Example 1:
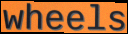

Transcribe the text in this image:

wheels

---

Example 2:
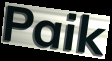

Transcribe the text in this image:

Paik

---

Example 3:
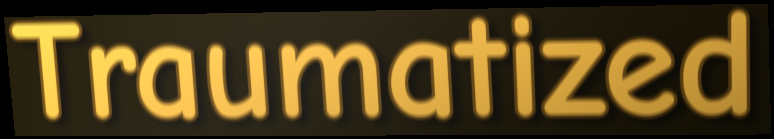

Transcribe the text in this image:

Traumatized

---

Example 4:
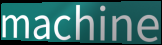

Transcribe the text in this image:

machine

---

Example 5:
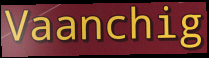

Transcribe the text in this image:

Vaanchig